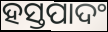
ହସ୍ତପାଦଂ